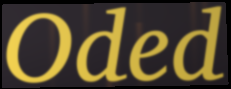
Oded